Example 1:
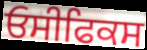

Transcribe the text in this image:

ਓਸੀਫਿਕਸ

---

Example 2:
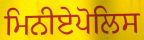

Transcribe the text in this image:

ਮਿਨੀਏਪੋਲਿਸ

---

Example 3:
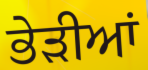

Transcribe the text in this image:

ਭੇੜੀਆਂ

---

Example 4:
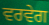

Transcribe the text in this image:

ਵਰਵੇਗ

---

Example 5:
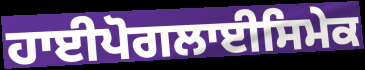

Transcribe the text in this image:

ਹਾਈਪੋਗਲਾਈਸਿਮੇਕ